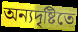
অন্যদৃষ্টিতে